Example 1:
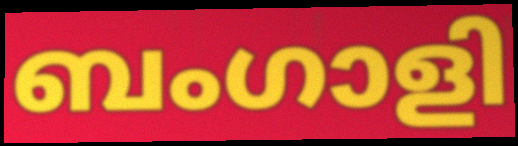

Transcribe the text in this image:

ബംഗാളി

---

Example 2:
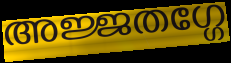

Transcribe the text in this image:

അജ്ജതഗ്ഗേ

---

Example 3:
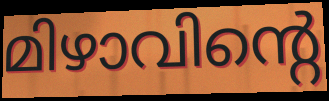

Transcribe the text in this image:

മിഴാവിന്റെ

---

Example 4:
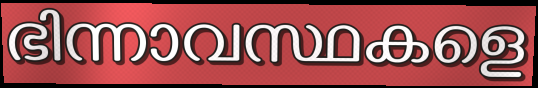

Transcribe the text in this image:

ഭിന്നാവസ്ഥകളെ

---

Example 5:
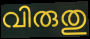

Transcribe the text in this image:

വിരുതു